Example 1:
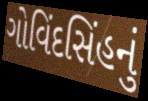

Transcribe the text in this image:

ગોવિંદસિંહનું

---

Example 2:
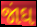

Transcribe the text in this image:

જાંઘ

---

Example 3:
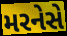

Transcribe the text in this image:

મરનેસે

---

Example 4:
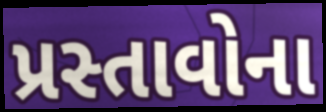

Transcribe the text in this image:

પ્રસ્તાવોના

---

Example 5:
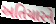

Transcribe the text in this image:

અતિચારને